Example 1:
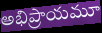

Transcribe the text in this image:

అభిప్రాయమూ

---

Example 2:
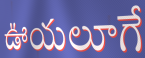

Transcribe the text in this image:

ఊయలూగే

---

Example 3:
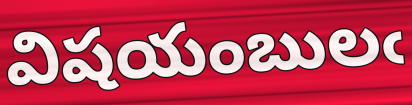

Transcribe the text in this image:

విషయంబులఁ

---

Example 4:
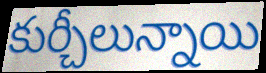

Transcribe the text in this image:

కుర్చీలున్నాయి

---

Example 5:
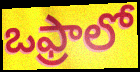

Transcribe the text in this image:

ఒఫ్రాలో